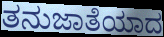
ತನುಜಾತೆಯಾದ